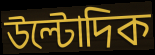
উল্টোদিক